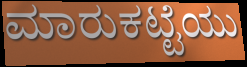
ಮಾರುಕಟ್ಟೆಯು